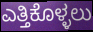
ಎತ್ತಿಕೊಳ್ಳಲು